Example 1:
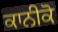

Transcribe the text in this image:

ਕਾਨੀਕੋ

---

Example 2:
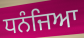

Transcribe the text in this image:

ਧਨੰਜਿਆ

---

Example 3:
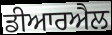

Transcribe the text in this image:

ਡੀਆਰਐਲ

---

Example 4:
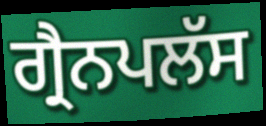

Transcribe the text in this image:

ਗ੍ਰੈਨਪਲੱਸ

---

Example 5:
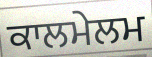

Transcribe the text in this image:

ਕਾਲਮੇਲਮ